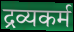
द्रव्यकर्म